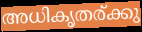
അധികൃതര്ക്കു